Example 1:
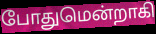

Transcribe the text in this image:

போதுமென்றாகி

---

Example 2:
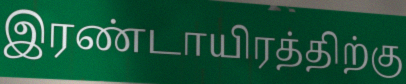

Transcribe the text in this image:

இரண்டாயிரத்திற்கு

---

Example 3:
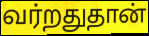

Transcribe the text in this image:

வர்றதுதான்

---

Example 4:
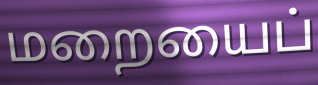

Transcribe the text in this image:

மறையைப்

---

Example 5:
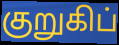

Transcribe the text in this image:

குறுகிப்